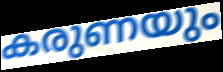
കരുണയും